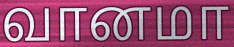
வானமா